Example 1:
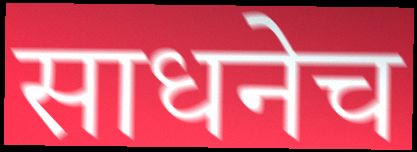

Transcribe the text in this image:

साधनेच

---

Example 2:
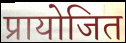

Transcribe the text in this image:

प्रायोजित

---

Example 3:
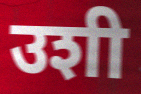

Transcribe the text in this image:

उशी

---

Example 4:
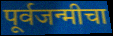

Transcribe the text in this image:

पूर्वजन्मीचा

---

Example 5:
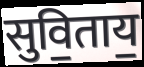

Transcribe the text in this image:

सुवि॒ताय॒